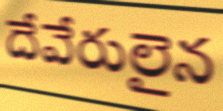
దేవేరులైన